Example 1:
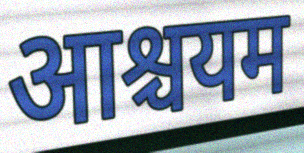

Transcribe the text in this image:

आश्चयम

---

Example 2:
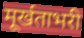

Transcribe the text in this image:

मूर्खताभरी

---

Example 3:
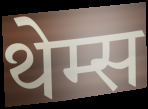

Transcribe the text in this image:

थेम्स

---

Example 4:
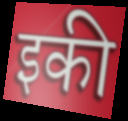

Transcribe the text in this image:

इकी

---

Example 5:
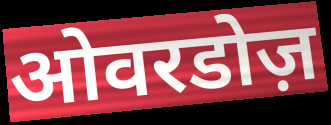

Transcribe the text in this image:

ओवरडोज़